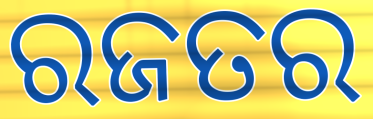
ରଜତର